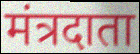
मंत्रदाता